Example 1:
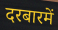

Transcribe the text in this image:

दरबारमें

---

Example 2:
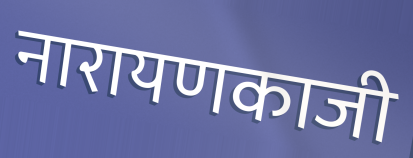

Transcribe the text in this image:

नारायणकाजी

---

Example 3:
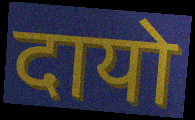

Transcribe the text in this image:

दायो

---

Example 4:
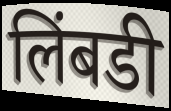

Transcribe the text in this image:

लिंबडी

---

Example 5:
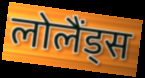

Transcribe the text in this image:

लोलैंड्स